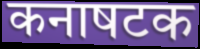
कनाषटक